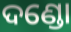
ଦଣ୍ଡୋ